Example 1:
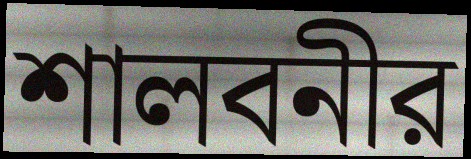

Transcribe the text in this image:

শালবনীর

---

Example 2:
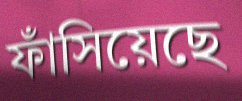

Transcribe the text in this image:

ফাঁসিয়েছে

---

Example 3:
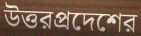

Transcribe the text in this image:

উত্তরপ্রদেশের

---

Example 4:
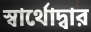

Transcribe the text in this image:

স্বার্থোদ্বার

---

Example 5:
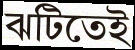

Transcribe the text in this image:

ঝটিতেই